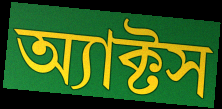
অ্যাক্টস